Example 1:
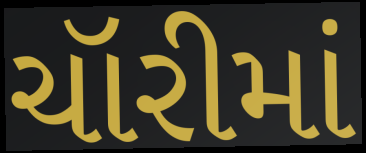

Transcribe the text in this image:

ચૉરીમાં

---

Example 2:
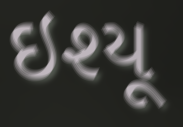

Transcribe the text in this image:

ઇશ્યૂ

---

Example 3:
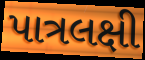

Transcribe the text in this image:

પાત્રલક્ષી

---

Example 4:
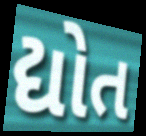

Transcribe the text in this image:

દ્યોત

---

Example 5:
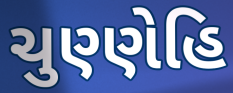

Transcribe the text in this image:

ચુણ્ણેહિ